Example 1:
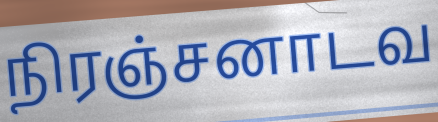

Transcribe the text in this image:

நிரஞ்சனாடவ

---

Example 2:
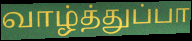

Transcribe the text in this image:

வாழ்த்துப்பா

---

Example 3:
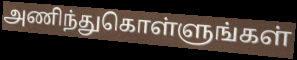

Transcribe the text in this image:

அணிந்துகொள்ளுங்கள்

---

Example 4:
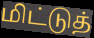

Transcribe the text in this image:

மிட்டுத்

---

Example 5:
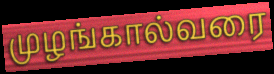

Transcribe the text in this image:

முழங்கால்வரை